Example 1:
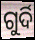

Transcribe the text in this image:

ଗୁର୍ଦି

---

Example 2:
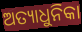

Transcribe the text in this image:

ଅତ୍ୟାଧୁନିକା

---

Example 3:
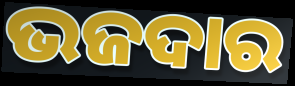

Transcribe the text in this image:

ଭଜଦାର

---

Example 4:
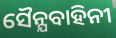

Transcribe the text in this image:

ସୈନ୍ଯବାହିନୀ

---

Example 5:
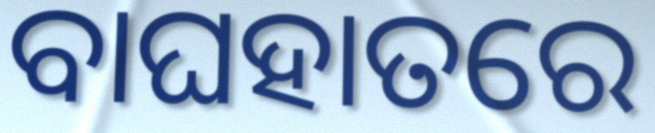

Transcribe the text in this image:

ବାଘହାତରେ